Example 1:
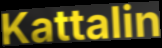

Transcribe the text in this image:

Kattalin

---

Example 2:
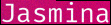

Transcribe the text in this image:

Jasmina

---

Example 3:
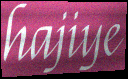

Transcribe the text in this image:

hajiye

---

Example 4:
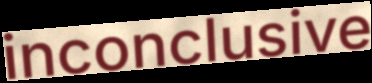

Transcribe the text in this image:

inconclusive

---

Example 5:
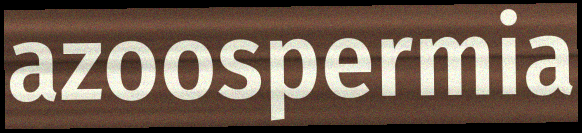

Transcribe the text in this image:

azoospermia